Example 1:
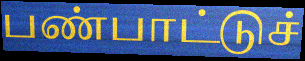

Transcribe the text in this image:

பண்பாட்டுச்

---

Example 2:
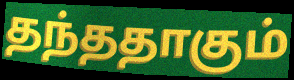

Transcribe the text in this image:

தந்ததாகும்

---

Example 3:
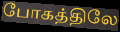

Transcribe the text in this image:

போகத்திலே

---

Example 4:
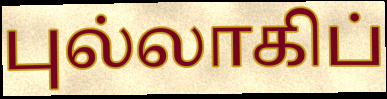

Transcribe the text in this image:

புல்லாகிப்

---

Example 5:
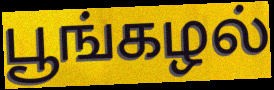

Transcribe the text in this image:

பூங்கழல்